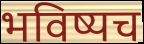
भविष्यच